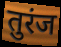
तुरंज